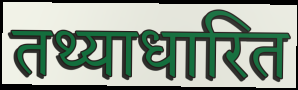
तथ्याधारित